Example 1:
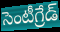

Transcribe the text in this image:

సెంటీగ్రేడ్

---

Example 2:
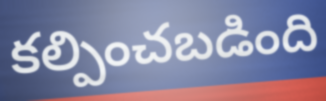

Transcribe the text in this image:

కల్పించబడింది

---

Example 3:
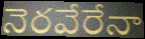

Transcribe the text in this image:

నెరవేరేనా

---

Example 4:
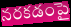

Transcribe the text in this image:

నరకడంపై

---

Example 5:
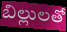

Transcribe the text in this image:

బిల్లులతో